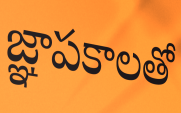
జ్ఞాపకాలతో